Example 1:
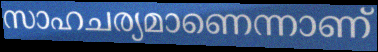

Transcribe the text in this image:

സാഹചര്യമാണെന്നാണ്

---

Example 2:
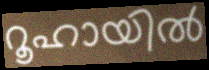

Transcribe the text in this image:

റൂഹായിൽ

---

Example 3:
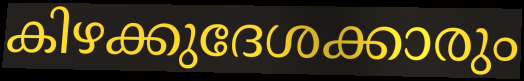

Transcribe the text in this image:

കിഴക്കുദേശക്കാരും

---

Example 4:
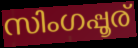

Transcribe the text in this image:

സിംഗപ്പൂര്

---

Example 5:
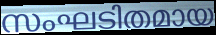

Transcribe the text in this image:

സംഘടിതമായ